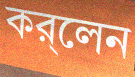
কর্‌লেন